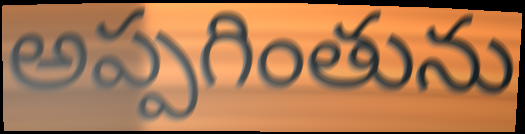
అప్పగింతును